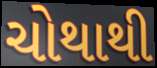
ચોથાથી